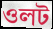
ওলট